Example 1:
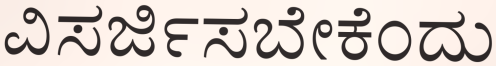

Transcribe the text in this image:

ವಿಸರ್ಜಿಸಬೇಕೆಂದು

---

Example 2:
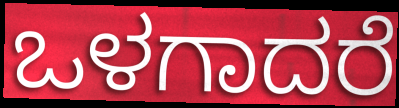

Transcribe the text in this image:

ಒಳಗಾದರೆ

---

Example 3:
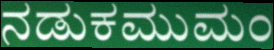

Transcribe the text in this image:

ನಡುಕಮುಮಂ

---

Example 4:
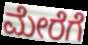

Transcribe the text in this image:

ಮೇರೆಗೆ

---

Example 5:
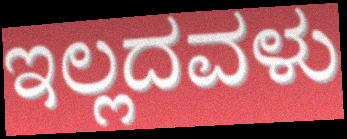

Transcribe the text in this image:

ಇಲ್ಲದವಳು